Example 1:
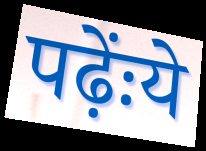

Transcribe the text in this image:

पढ़ेंःये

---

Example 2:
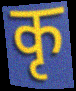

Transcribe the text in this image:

कृ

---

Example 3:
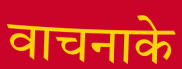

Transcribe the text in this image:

वाचनाके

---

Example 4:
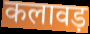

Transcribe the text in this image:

कलावड़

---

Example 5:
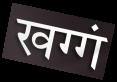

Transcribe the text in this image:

खग्गं